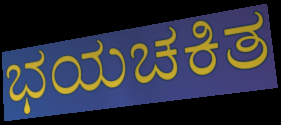
ಭಯಚಕಿತ